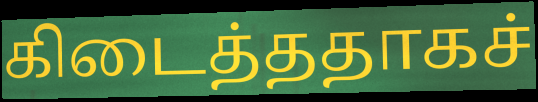
கிடைத்ததாகச்